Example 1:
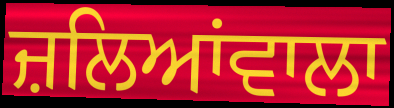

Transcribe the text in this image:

ਜ਼ਲਿਆਂਵਾਲਾ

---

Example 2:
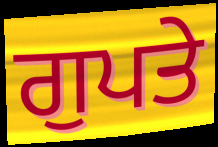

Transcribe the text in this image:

ਗੁਪਤੇ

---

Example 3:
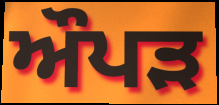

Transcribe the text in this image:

ਔਪੜ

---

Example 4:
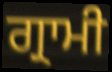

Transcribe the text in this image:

ਗ੍ਰਾਮੀ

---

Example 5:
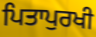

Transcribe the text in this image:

ਪਿਤਾਪੁਰਖੀ